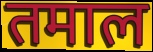
तमाल